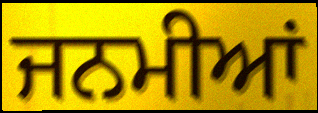
ਜਨਮੀਆਂ